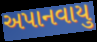
અપાનવાયુ